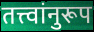
तत्त्वांनुरूप